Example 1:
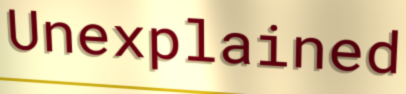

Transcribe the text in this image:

Unexplained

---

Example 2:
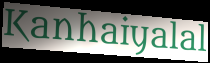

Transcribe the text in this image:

Kanhaiyalal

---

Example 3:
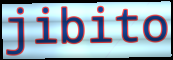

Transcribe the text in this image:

jibito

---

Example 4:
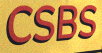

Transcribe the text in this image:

CSBS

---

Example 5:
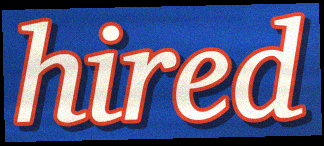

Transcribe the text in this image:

hired